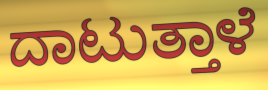
ದಾಟುತ್ತಾಳೆ